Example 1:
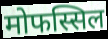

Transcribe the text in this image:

मोफस्सिल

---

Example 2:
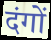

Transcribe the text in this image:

दंगों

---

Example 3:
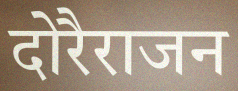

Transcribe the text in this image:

दोरैराजन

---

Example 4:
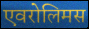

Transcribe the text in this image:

एवरोलिमस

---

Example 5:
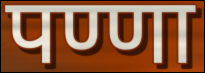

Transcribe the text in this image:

पण्णा